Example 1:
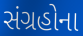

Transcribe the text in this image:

સંગ્રહોના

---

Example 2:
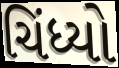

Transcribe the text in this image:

ચિંધ્યો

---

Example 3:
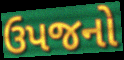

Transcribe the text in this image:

ઉપજનો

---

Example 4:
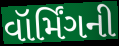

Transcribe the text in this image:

વૉર્મિંગની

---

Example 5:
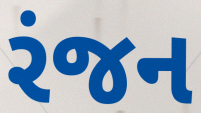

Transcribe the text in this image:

રંજન